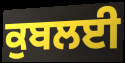
ਕੁਬਲਈ